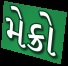
મેક્રો